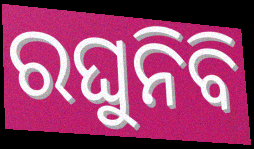
ରଘୁନିବି